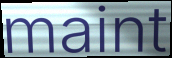
maint